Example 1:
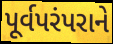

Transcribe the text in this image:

પૂર્વપરંપરાને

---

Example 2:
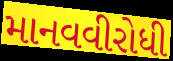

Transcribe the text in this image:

માનવવીરોધી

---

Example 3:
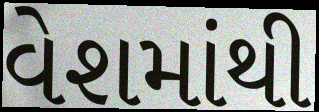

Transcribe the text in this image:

વેશમાંથી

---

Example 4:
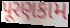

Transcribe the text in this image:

પૂરણકામ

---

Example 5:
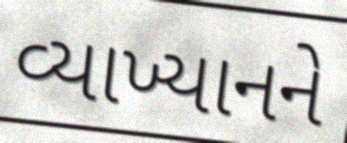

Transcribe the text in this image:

વ્યાખ્યાનને